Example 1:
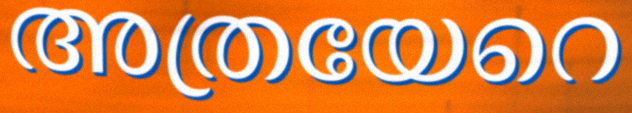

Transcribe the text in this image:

അത്രയേറെ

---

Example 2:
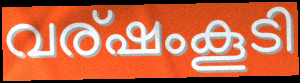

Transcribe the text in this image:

വര്ഷംകൂടി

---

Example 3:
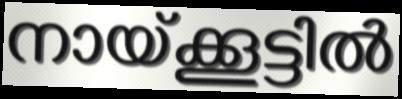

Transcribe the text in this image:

നായ്‌ക്കൂട്ടിൽ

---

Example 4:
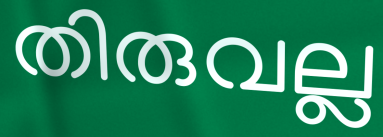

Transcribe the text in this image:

തിരുവല്ല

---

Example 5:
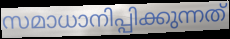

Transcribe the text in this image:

സമാധാനിപ്പിക്കുന്നത്